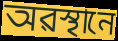
অৱস্থানে